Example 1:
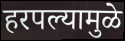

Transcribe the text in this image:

हरपल्यामुळे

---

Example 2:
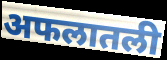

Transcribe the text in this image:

अफलातली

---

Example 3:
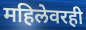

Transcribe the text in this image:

महिलेवरही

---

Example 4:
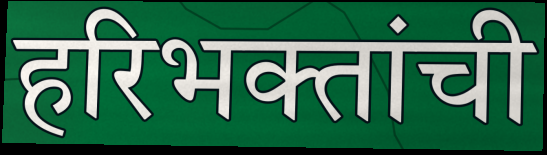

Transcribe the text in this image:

हरिभक्तांची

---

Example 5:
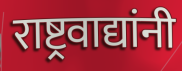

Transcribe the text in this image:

राष्ट्रवाद्यांनी